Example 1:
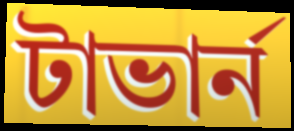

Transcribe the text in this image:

টাভার্ন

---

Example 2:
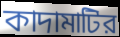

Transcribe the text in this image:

কাদামাটির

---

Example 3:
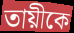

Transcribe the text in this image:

তায়ীকে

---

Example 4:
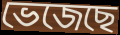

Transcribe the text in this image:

ভেজেছে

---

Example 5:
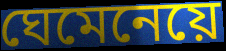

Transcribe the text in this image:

ঘেমেনেয়ে